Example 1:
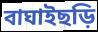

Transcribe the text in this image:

বাঘাইছড়ি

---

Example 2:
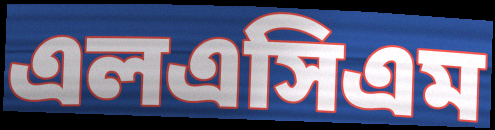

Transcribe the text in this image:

এলএসিএম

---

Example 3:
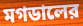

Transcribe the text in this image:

মগডালের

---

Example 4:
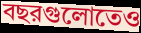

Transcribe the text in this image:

বছরগুলোতেও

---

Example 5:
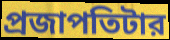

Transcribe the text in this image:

প্রজাপতিটার